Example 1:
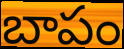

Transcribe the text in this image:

బాపం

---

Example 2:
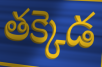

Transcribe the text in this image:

తక్కెడ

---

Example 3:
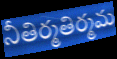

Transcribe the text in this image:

నీతిర్మతిర్మమ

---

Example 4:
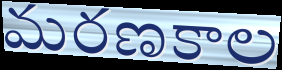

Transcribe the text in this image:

మరణకాల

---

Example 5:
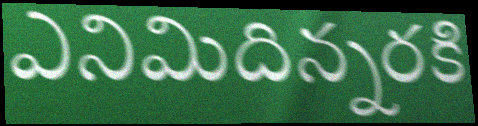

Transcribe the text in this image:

ఎనిమిదిన్నరకి